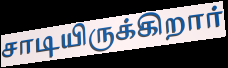
சாடியிருக்கிறார்